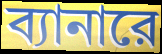
ব্যানারে